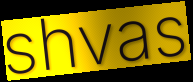
shvas